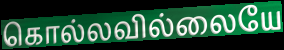
கொல்லவில்லையே